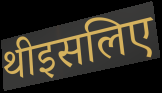
थीइसलिए